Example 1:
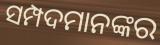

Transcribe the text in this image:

ସମ୍ପଦମାନଙ୍କର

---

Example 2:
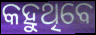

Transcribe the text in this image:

କହୁଥିବେ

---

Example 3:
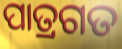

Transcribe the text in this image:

ପାତ୍ରଗତ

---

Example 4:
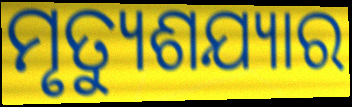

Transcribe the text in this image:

ମୃତ୍ୟୁଶଯ୍ୟାର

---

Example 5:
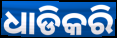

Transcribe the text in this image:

ଧାଡିକରି